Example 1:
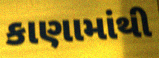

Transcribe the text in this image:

કાણામાંથી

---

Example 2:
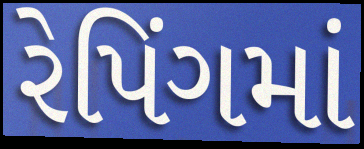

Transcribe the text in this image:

રેપિંગમાં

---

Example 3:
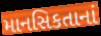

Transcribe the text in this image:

માનસિકતાનાં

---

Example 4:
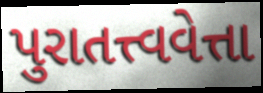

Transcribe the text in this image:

પુરાતત્ત્વવેત્તા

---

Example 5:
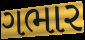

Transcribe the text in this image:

ગભાર